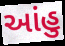
આંહુ